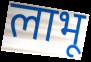
लाभू